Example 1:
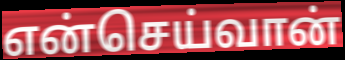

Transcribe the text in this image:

என்செய்வான்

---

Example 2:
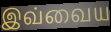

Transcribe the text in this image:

இவ்வைய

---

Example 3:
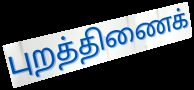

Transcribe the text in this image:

புறத்திணைக்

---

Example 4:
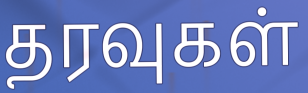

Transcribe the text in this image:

தரவுகள்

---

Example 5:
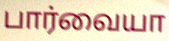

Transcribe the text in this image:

பார்வையா